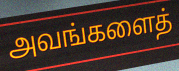
அவங்களைத்